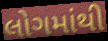
લોગમાંથી